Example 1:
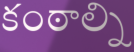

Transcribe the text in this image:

కంఠాల్ని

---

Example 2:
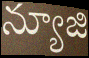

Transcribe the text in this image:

న్యూజి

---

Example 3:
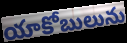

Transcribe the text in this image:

యాకోబులును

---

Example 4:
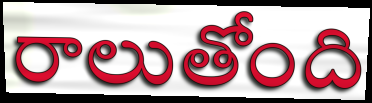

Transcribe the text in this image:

రాలుతోంది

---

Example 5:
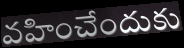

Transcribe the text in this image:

వహించేందుకు